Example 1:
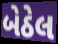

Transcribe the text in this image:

બેઠેલ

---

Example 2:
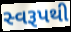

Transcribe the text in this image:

સ્વરૂપથી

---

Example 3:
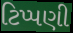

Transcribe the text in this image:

ટિપ્પણી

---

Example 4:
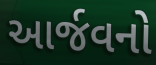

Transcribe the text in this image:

આર્જવનો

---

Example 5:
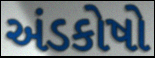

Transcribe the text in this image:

અંડકોષો